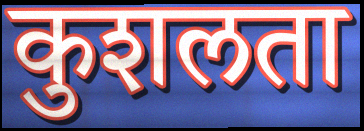
कुशलता